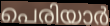
പെരിയാർ